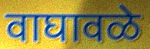
वाघावळे